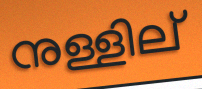
നുള്ളില്